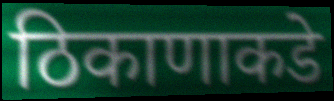
ठिकाणाकडे